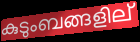
കുടുംബങ്ങളില്